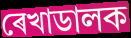
ৰেখাডালক